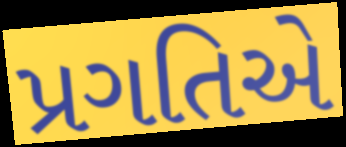
પ્રગતિએ